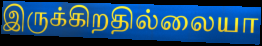
இருக்கிறதில்லையா